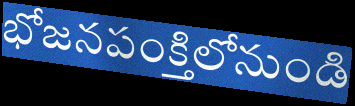
భోజనపంక్తిలోనుండి